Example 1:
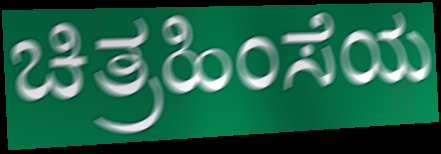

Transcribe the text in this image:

ಚಿತ್ರಹಿಂಸೆಯ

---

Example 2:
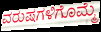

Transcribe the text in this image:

ವರುಷಗಳಿಗೊಮ್ಮೆ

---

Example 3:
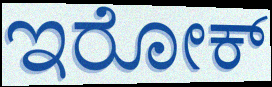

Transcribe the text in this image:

ಇರೋಕ್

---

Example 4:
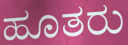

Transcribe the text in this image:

ಹೂತರು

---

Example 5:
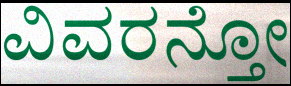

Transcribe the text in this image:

ವಿವರನ್ತೋ